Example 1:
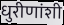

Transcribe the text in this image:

धुरीणांशी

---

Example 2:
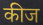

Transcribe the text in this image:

कीज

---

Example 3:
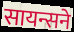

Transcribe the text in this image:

सायन्सने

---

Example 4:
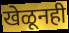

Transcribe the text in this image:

खेळूनही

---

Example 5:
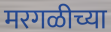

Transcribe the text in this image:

मरगळीच्या